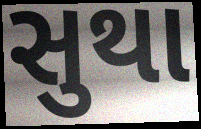
સુથા